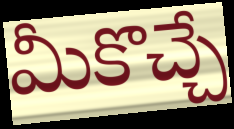
మీకొచ్చే